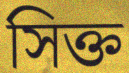
সিক্ত